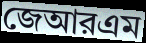
জেআরএম